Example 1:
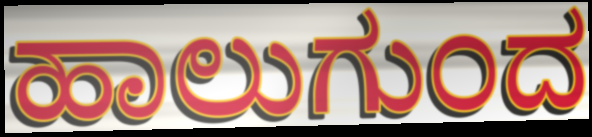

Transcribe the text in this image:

ಹಾಲುಗುಂದ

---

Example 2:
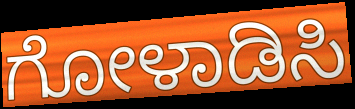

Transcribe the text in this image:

ಗೋಳಾಡಿಸಿ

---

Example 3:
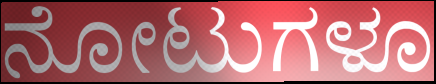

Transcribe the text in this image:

ನೋಟುಗಳೂ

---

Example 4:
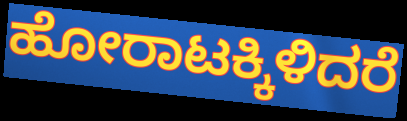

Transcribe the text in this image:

ಹೋರಾಟಕ್ಕಿಳಿದರೆ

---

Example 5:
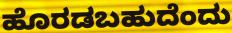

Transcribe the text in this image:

ಹೊರಡಬಹುದೆಂದು